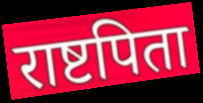
राष्टपिता